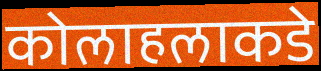
कोलाहलाकडे